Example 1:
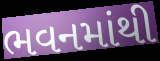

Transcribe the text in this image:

ભવનમાંથી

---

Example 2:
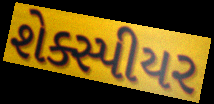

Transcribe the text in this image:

શેક્સ્પીયર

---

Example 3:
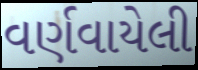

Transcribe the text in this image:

વર્ણવાયેલી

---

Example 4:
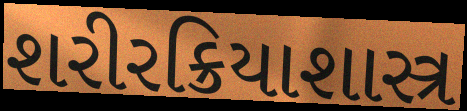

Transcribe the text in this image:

શરીરક્રિયાશાસ્ત્ર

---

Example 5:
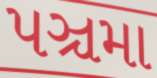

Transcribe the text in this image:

પઞ્ચમા